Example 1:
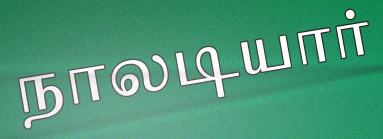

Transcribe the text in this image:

நாலடியார்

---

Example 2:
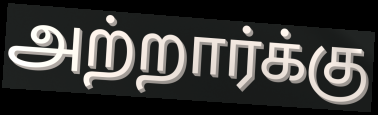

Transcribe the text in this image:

அற்றார்க்கு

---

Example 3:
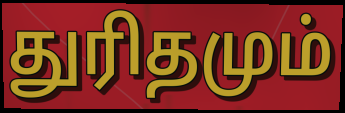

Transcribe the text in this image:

துரிதமும்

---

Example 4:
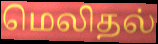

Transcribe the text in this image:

மெலிதல்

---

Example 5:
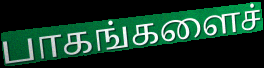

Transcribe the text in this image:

பாகங்களைச்